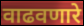
वाढवणारे